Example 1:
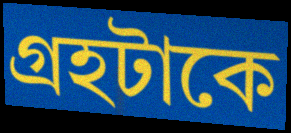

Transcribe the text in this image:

গ্রহটাকে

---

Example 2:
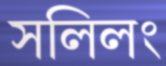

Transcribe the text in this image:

সলিলং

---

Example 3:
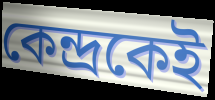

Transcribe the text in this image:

কেন্দ্রকেই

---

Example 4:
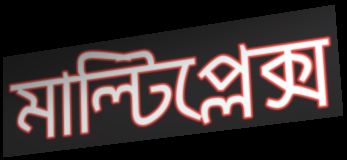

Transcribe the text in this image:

মাল্টিপ্লেক্স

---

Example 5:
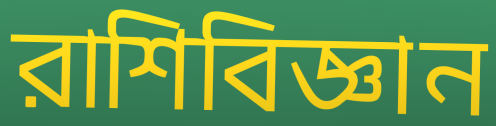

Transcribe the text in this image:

রাশিবিজ্ঞান